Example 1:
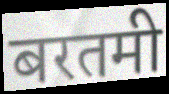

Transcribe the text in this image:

बरतमी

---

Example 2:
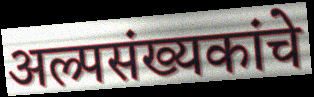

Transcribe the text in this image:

अल्पसंख्यकांचे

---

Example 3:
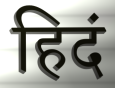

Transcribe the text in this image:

हिदं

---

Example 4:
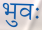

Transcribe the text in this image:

भुवः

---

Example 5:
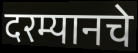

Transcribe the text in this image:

दरम्यानचे